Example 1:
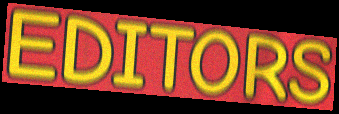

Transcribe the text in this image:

EDITORS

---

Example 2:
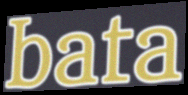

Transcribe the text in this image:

bata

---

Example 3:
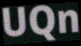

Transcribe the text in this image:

UQn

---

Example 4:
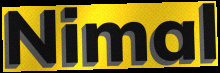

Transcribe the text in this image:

Nimal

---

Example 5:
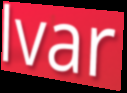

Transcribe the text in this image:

Ivar